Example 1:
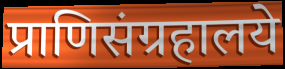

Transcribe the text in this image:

प्राणिसंग्रहालये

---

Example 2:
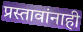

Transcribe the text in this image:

प्रस्तावांनाही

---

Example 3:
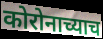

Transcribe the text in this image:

कोरोनाच्याच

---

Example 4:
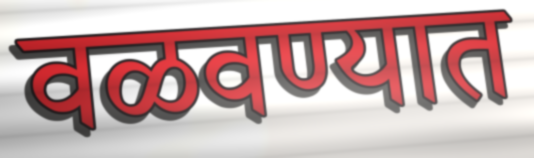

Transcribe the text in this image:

वळवण्यात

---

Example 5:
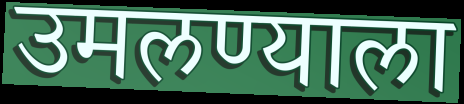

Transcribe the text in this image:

उमलण्याला